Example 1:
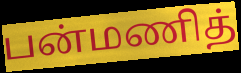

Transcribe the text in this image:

பன்மணித்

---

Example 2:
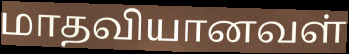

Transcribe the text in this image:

மாதவியானவள்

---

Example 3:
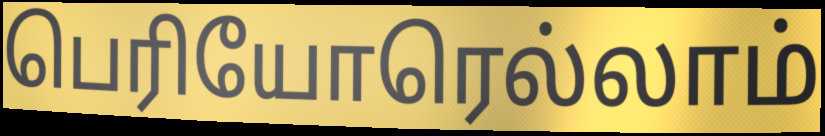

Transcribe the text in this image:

பெரியோரெல்லாம்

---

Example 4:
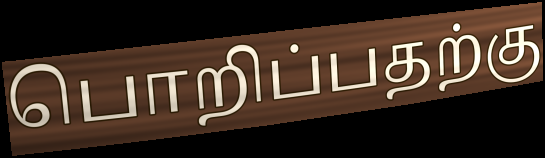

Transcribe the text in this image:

பொறிப்பதற்கு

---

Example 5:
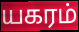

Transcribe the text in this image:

யகரம்